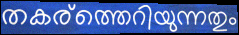
തകര്ത്തെറിയുന്നതും